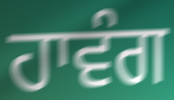
ਹਾਵੰਗ